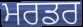
ਮਰਡਰ